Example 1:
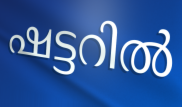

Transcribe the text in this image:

ഷട്ടറിൽ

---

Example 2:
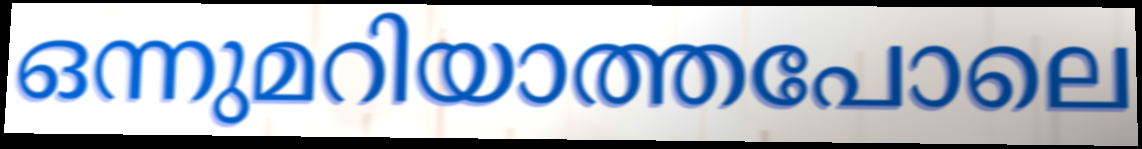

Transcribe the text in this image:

ഒന്നുമറിയാത്തപോലെ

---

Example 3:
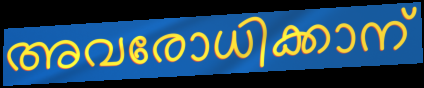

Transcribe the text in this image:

അവരോധിക്കാന്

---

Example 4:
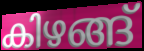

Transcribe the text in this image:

കിഴങ്ങ്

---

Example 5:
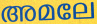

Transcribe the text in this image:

അമലേ